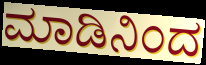
ಮಾಡಿನಿಂದ